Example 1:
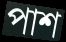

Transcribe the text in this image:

পাশ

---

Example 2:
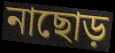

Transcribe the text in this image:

নাছোড়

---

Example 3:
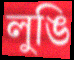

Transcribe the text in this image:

লুঙি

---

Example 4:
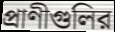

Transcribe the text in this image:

প্রাণীগুলির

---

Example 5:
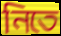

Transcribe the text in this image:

নিতে